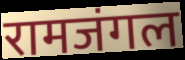
रामजंगल